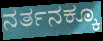
ನರ್ತನಕ್ಕೂ